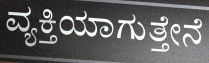
ವ್ಯಕ್ತಿಯಾಗುತ್ತೇನೆ